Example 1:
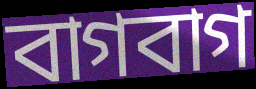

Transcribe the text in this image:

বাগবাগ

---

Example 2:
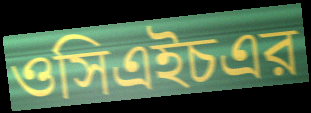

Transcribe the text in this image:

ওসিএইচএর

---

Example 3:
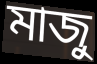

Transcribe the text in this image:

মাজু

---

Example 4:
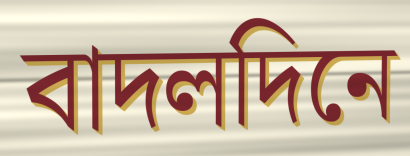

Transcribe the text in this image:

বাদলদিনে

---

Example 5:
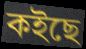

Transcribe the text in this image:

কইছে